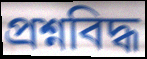
প্রশ্নবিদ্ধ